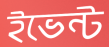
ইভেন্ট